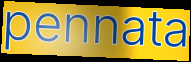
pennata